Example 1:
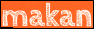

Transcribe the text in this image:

makan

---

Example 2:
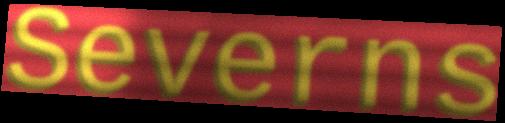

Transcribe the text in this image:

Severns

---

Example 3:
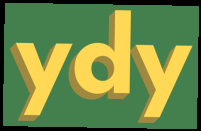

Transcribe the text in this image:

ydy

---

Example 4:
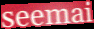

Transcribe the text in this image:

seemai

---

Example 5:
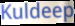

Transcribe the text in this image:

Kuldeep